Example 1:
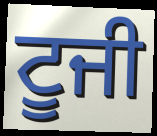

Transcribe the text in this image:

ਟੂਜੀ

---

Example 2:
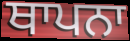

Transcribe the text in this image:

ਥਾਪਨਾ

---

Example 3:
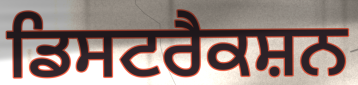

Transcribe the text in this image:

ਡਿਸਟਰੈਕਸ਼ਨ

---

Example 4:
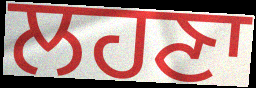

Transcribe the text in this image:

ਲਹਣਾ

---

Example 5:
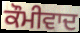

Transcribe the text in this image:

ਕੌਮੀਵਾਦ